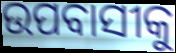
ଉପବାସୀକୁ